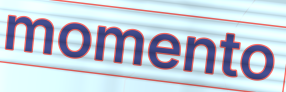
momento